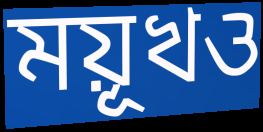
ময়ূখও